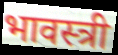
भावस्त्री